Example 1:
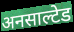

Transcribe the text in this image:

अनसाल्टेड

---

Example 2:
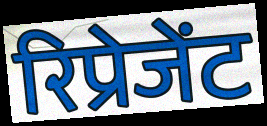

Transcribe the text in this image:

रिप्रेजेंट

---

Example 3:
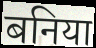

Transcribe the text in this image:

बनिया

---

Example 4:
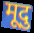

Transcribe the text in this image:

मूदु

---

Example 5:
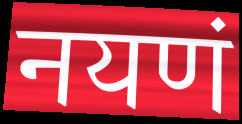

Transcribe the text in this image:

नयणं